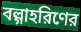
বল্গাহরিণের